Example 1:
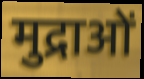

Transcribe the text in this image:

मुद्राओं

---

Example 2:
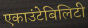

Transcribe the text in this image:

एकाउंटेबिलिटी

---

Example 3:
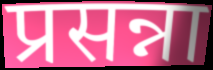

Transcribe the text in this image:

प्रसन्ना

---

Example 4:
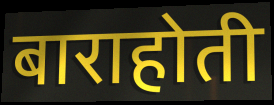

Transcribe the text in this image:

बाराहोती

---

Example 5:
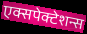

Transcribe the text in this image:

एक्सपेक्टेशन्स